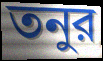
তনুর